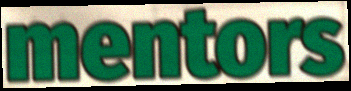
mentors